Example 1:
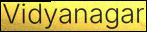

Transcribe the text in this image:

Vidyanagar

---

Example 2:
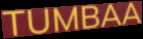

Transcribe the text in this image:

TUMBAA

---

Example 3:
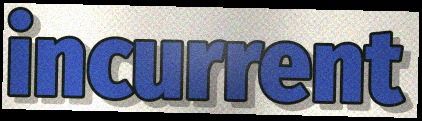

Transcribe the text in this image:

incurrent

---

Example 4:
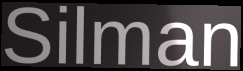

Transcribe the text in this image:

Silman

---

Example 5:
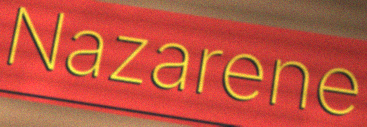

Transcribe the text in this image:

Nazarene